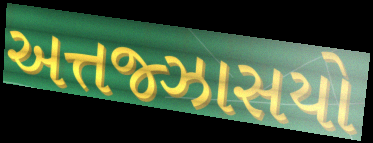
અત્તજ્ઝાસયો